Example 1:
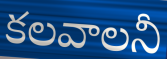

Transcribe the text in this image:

కలవాలనీ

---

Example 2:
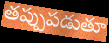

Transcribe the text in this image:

తప్పుపడుతూ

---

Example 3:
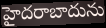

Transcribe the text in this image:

హైదరాబాదును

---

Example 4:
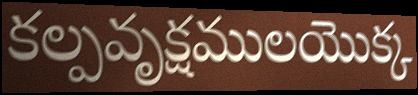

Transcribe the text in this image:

కల్పవృక్షములయొక్క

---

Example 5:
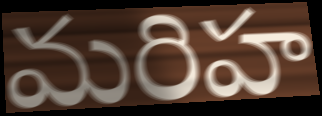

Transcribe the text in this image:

మరిహ